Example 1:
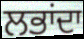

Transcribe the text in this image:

ਲਭਾਂਦਾ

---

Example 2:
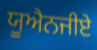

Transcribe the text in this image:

ਯੂਐਨਜੀਏ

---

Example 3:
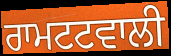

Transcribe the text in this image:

ਰਾਮਟਟਵਾਲੀ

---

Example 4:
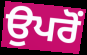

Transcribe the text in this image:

ਉਪਰੋਂ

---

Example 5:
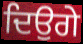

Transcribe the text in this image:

ਦਿਉਗੇ